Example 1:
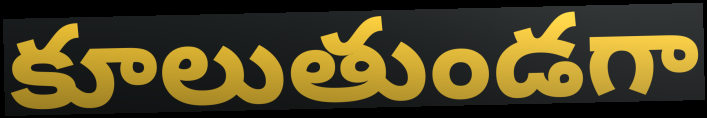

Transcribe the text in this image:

కూలుతుండగా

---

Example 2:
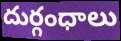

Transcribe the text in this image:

దుర్గంధాలు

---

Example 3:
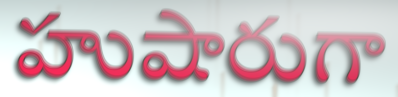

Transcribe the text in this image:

హుషారుగా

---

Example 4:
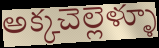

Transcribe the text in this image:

అక్కచెల్లెళ్ళూ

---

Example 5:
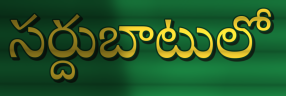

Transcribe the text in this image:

సర్దుబాటులో